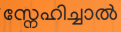
സ്നേഹിച്ചാൽ